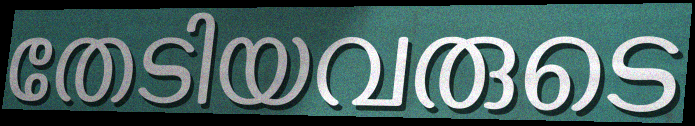
തേടിയവരുടെ